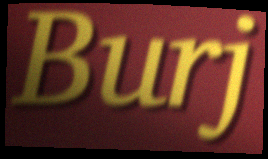
Burj